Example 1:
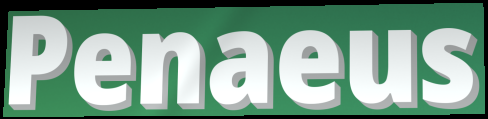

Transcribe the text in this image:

Penaeus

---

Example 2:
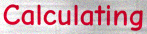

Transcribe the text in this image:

Calculating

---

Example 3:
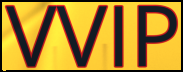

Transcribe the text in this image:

VVIP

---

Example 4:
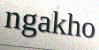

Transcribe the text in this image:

ngakho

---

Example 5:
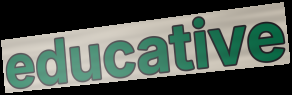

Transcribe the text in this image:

educative